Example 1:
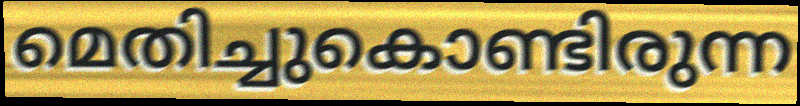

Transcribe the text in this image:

മെതിച്ചുകൊണ്ടിരുന്ന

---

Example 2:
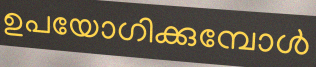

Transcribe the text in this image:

ഉപയോഗിക്കുമ്പോൾ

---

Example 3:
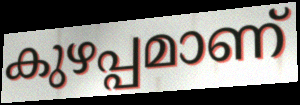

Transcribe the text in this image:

കുഴപ്പമാണ്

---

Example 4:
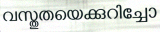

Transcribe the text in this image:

വസ്തുതയെക്കുറിച്ചോ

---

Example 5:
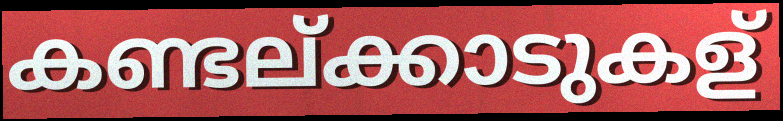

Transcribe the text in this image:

കണ്ടല്ക്കാടുകള്